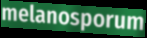
melanosporum